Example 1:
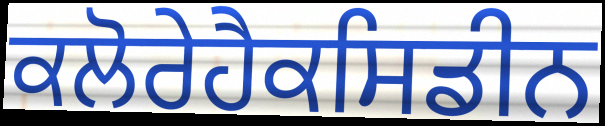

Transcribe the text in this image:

ਕਲੋਰੇਹੈਕਸਿਡੀਨ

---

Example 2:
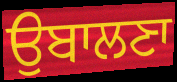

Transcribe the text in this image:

ਉਬਾਲਣਾ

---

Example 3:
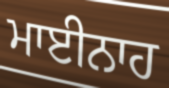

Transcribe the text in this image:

ਮਾਈਨਾਹ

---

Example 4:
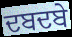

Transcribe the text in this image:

ਦਬਦਬੇ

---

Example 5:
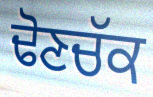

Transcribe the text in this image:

ਢੋਣਚੱਕ